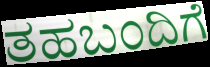
ತಹಬಂದಿಗೆ